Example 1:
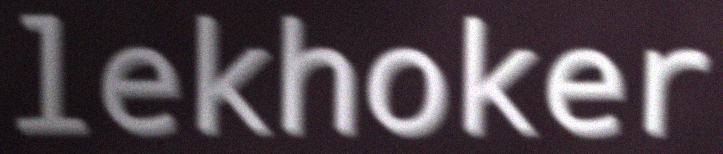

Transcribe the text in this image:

lekhoker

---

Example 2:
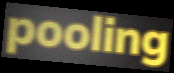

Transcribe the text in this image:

pooling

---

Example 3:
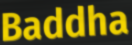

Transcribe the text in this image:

Baddha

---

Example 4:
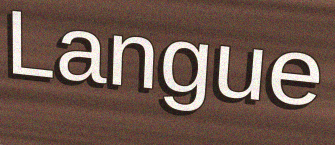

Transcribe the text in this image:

Langue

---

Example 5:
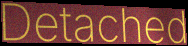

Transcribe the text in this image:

Detached